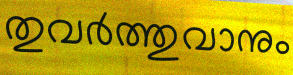
തുവർത്തുവാനും